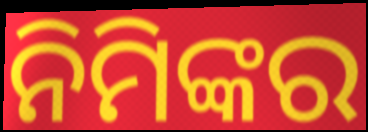
ନିମିଙ୍କର